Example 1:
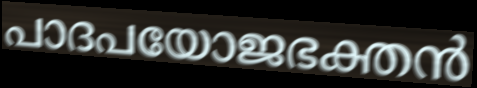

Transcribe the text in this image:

പാദപയോജഭക്തൻ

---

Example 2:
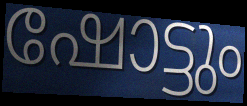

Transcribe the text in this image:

ഷോട്ടും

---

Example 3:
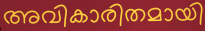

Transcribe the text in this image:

അവികാരിതമായി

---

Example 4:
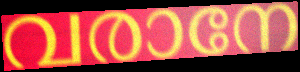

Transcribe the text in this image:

വരാനേ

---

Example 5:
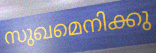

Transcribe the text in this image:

സുഖമെനിക്കു